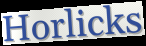
Horlicks